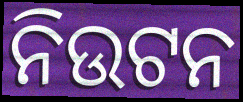
ନିଉଟନ